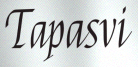
Tapasvi